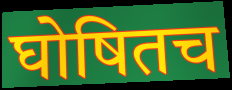
घोषितच